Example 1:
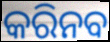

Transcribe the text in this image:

କରିନବ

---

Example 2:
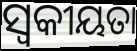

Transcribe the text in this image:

ସ୍ଵକୀୟତା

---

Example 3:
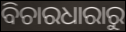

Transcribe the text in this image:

ବିଚାରଧାରାରୁ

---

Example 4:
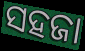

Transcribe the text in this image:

ସହଜା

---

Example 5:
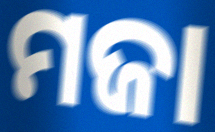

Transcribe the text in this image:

ମଜା